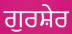
ਗੁਰਸ਼ੇਰ